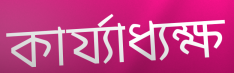
কার্য্যাধ্যক্ষ